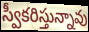
స్వీకరిస్తున్నావు